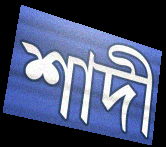
শাদী